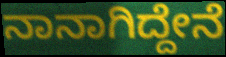
ನಾನಾಗಿದ್ದೇನೆ